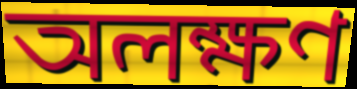
অলক্ষণ